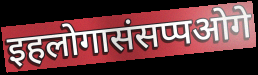
इहलोगासंसप्पओगे